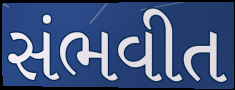
સંભવીત